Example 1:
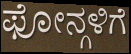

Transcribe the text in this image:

ಫೋನ್ಗಳಿಗೆ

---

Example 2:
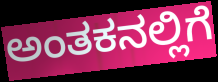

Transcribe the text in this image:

ಅಂತಕನಲ್ಲಿಗೆ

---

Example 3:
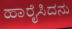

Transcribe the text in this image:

ಹಾರೈಸಿದನು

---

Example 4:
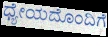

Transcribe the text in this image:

ಧ್ಯೇಯದೊಂದಿಗೆ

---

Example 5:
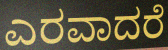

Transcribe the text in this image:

ಎರವಾದರೆ